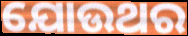
ଯୋଉଥର